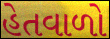
હેતવાળો